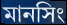
মানসিং